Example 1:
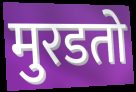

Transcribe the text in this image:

मुरडतो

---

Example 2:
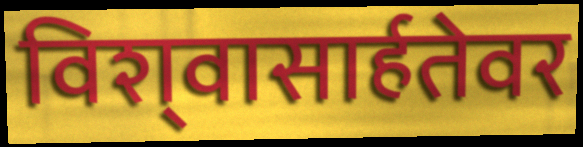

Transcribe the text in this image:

विश्वासार्हतेवर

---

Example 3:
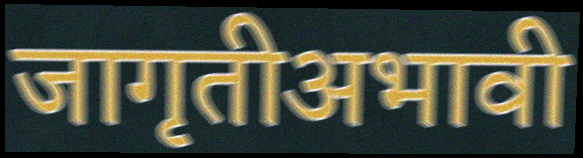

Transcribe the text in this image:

जागृतीअभावी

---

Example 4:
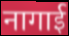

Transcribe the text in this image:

नागाई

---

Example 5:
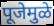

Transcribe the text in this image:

पूजेमुळे